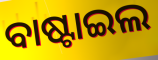
ବାଷ୍ଟାଇଲ